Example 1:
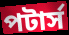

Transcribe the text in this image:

পটার্স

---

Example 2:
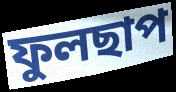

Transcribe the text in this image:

ফুলছাপ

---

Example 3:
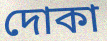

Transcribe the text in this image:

দোকা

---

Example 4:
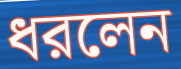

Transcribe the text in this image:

ধরলেন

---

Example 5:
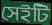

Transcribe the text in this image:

সেইটি